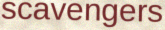
scavengers